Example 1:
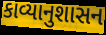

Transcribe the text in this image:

કાવ્યાનુશાસન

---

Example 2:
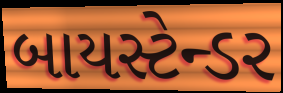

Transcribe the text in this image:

બાયસ્ટેન્ડર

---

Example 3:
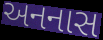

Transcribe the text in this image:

અનનાસ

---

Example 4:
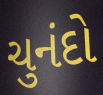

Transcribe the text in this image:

ચુનંદો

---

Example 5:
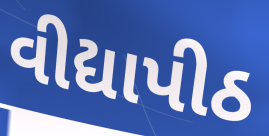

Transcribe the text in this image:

વીદ્યાપીઠ